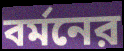
বর্মনের